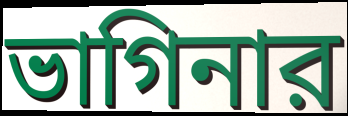
ভাগিনার